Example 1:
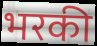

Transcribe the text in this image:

भरकी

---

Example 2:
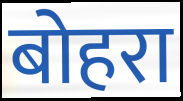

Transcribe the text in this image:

बोहरा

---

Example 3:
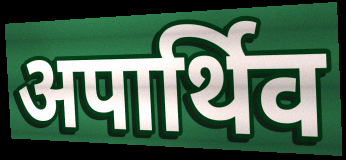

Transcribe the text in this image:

अपार्थिव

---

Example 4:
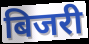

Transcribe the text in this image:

बिजरी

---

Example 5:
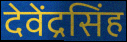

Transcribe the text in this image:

देवेंद्रसिंह